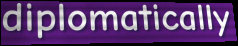
diplomatically